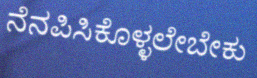
ನೆನಪಿಸಿಕೊಳ್ಳಲೇಬೇಕು